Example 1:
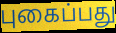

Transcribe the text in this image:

புகைப்பது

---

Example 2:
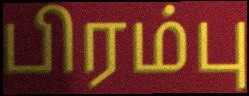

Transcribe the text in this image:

பிரம்பு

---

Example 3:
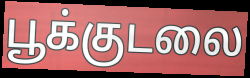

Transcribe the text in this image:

பூக்குடலை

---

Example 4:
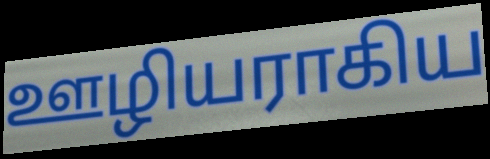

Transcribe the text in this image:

ஊழியராகிய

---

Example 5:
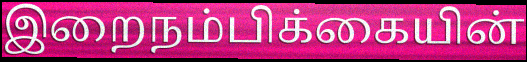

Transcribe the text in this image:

இறைநம்பிக்கையின்